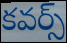
కవర్స్